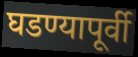
घडण्यापूर्वी